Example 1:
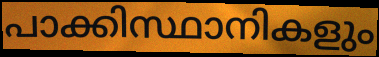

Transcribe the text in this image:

പാക്കിസ്ഥാനികളും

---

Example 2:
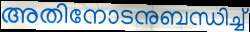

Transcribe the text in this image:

അതിനോടനുബന്ധിച്ച്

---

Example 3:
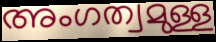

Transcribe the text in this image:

അംഗത്വമുള്ള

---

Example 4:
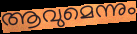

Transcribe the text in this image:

ആവുമെന്നും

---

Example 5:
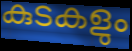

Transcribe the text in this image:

കുടകളും